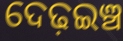
ଦେଢ଼ଇଞ୍ଚ